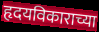
हृदयविकाराच्या